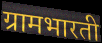
ग्रामभारती